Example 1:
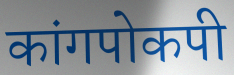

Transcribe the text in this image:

कांगपोकपी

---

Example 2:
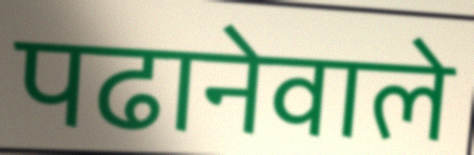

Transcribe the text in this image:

पढानेवाले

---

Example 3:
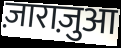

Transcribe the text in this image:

ज़ाराज़ुआ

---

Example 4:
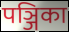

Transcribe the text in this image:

पञ्जिका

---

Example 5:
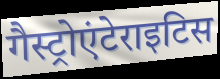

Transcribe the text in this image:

गैस्ट्रोएंटेराइटिस